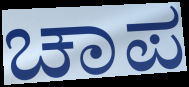
ಚಾಪ